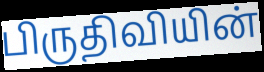
பிருதிவியின்